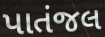
પાતંજલ